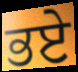
ਭਏ